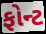
ફોન્ટ